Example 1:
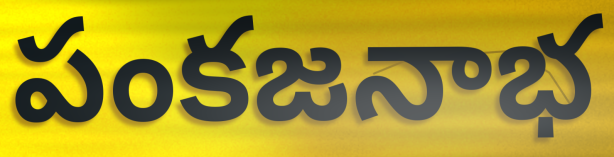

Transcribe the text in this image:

పంకజనాభ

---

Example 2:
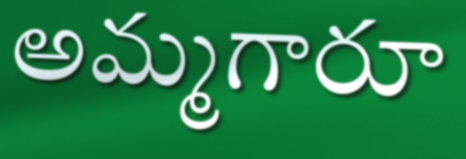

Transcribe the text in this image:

అమ్మగారూ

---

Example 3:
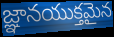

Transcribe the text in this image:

జ్ఞానయుక్తమైన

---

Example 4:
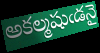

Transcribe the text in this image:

అకల్మషుఁడనై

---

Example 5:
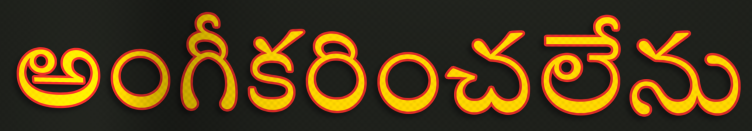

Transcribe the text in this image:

అంగీకరించలేను